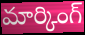
మార్కింగ్